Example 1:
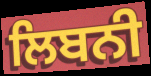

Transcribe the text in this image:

ਲਿਬਨੀ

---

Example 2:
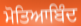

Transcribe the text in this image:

ਮੋਤਿਆਬਿੰਦ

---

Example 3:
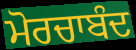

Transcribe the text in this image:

ਮੋਰਚਾਬੰਦ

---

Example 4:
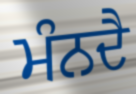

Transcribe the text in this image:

ਮੰਨਦੈ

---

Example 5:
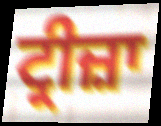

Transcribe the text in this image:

ਟ੍ਰੀਜ਼ਾ